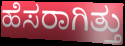
ಹೆಸರಾಗಿತ್ತು